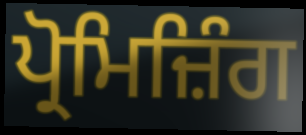
ਪ੍ਰੋਮਿਜ਼ਿੰਗ